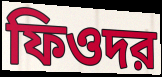
ফিওদর